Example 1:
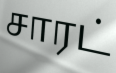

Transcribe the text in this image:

சாரட்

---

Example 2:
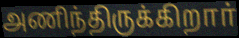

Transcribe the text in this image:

அணிந்திருக்கிறார்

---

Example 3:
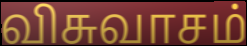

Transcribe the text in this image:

விசுவாசம்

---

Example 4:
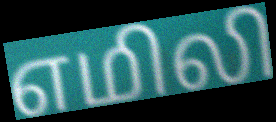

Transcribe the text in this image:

எமிலி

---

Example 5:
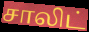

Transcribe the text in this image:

சாலிட்